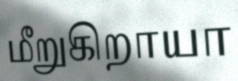
மீறுகிறாயா